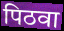
पिठवा